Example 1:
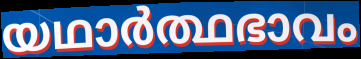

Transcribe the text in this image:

യഥാർത്ഥഭാവം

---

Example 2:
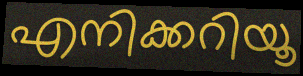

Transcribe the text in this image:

എനിക്കറിയൂ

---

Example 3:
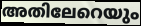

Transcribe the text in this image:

അതിലേറെയും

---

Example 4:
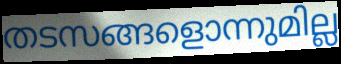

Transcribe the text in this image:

തടസങ്ങളൊന്നുമില്ല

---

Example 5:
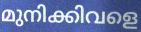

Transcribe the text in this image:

മുനിക്കിവളെ